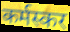
कर्मस्कर